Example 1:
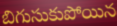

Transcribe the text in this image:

బిగుసుకుపోయిన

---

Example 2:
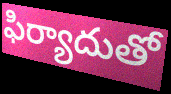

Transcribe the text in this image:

ఫిర్యాదుతో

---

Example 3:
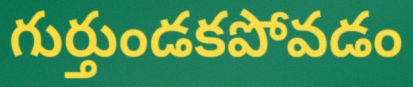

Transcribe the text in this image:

గుర్తుండకపోవడం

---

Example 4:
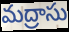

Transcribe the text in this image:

మద్రాసు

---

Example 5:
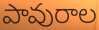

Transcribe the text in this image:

పావురాల